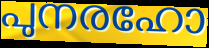
പുനരഹോ